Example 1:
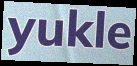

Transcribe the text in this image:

yukle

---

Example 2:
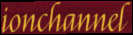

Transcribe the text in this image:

ionchannel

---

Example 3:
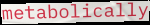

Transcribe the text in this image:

metabolically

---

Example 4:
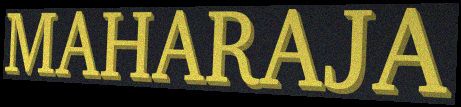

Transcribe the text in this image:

MAHARAJA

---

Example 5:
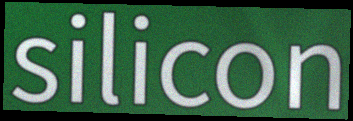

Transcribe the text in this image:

silicon